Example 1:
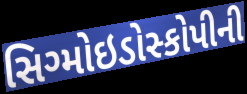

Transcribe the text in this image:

સિગ્મોઇડોસ્કોપીની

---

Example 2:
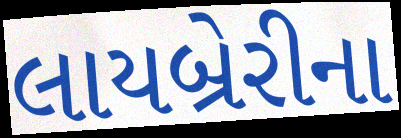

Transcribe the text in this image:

લાયબ્રેરીના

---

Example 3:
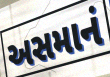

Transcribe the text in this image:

અસમાનં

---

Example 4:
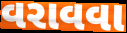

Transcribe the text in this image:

વરાવવા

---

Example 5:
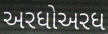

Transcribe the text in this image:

અરધોઅરધ